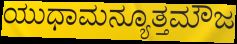
ಯುಧಾಮನ್ಯೂತ್ತಮೌಜ